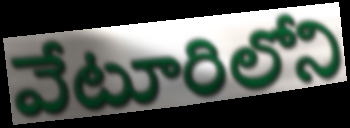
వేటూరిలోని